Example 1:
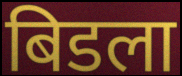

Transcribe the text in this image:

बिडला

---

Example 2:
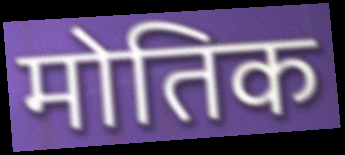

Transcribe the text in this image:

मोतिक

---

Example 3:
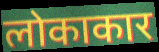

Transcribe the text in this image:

लोकाकार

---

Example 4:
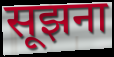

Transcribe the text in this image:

सूझना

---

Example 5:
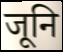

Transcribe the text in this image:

जूनि